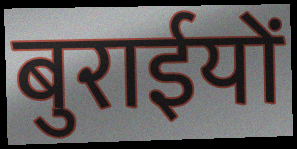
बुराईयों